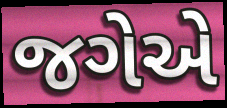
જગેએ